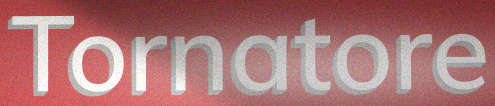
Tornatore